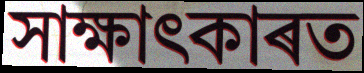
সাক্ষাৎকাৰত